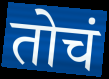
तोचं